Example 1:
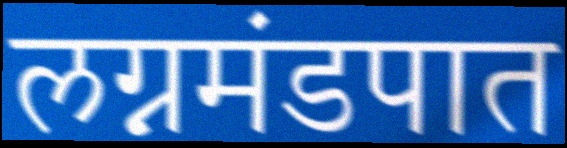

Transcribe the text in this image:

लग्नमंडपात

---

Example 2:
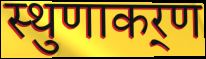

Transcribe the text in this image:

स्थुणाकर्ण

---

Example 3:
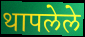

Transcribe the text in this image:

थापलेले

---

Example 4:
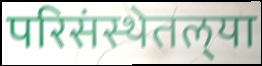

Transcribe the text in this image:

परिसंस्थेतल्या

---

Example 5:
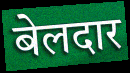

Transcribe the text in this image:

बेलदार